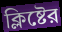
ক্লিষ্টের